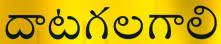
దాటగలగాలి